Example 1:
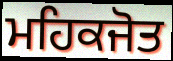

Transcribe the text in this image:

ਮਹਿਕਜੋਤ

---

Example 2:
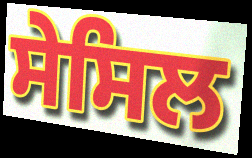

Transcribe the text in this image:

ਸੇਸਿਲ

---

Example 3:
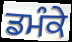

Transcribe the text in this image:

ਡਮੰਕੇ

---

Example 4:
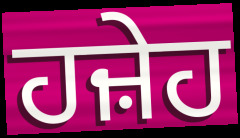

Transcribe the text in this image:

ਹਜ਼ੇਹ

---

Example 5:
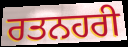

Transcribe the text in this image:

ਰਤਨਹਰੀ